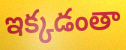
ఇక్కడంతా